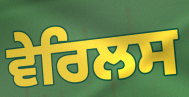
ਵੇਰਿਲਸ